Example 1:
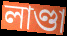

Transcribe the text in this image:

লাণ্ডা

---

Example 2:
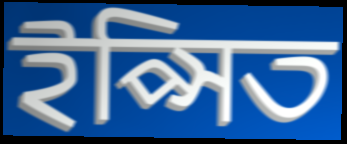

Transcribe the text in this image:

ইপ্সিত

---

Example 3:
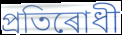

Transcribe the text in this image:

প্ৰতিৰোধী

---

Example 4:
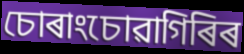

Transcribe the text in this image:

চোৰাংচোৱাগিৰিৰ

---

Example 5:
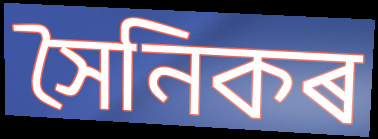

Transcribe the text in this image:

সৈনিকৰ